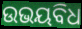
ଉଭୟବିଧ